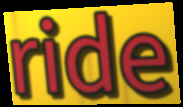
ride